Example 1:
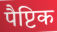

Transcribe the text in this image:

पैप्टिक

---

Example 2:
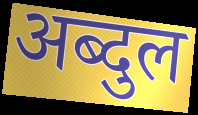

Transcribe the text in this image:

अब्दुल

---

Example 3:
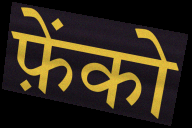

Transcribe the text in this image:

फ़ेंको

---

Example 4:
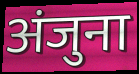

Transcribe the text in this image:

अंजुना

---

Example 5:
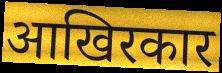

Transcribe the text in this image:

आखिरकार